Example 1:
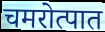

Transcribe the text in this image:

चमरोत्पात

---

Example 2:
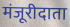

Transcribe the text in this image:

मंजूरीदाता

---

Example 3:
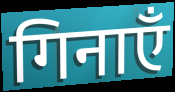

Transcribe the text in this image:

गिनाएँ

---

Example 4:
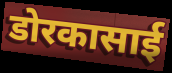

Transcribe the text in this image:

डोरकासाई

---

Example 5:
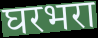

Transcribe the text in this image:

घरभरा